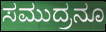
ಸಮುದ್ರನೂ